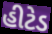
હીટેડ